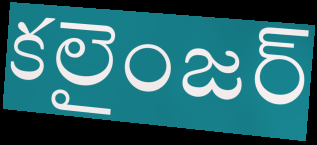
కలైంజర్